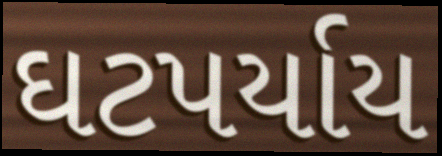
ઘટપર્યાય